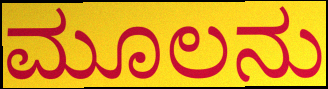
ಮೂಲನು